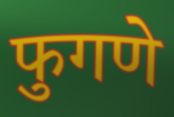
फुगणे